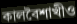
কালবৈশাখীও